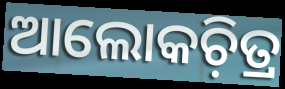
ଆଲୋକଚ଼ିତ୍ର